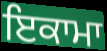
ਇਕਾਮਾ